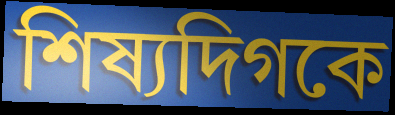
শিষ্যদিগকে